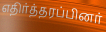
எதிர்த்தரப்பினர்